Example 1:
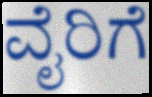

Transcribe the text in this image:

ವೈರಿಗೆ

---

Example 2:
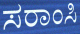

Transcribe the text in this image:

ಸರಾಂಸಿ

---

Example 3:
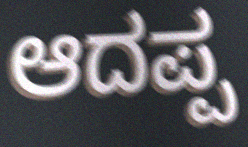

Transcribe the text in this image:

ಆದಪ್ಪ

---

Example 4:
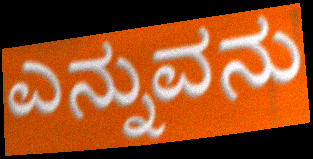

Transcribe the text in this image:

ಎನ್ನುವನು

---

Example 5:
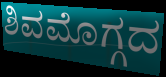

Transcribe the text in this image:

ಶಿವಮೊಗ್ಗದ